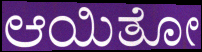
ಆಯಿತೋ